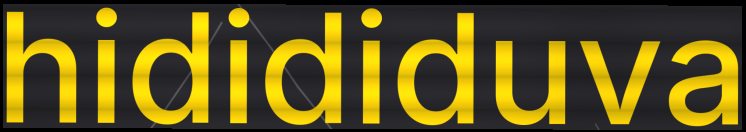
hidididuva